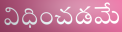
విధించడమే